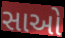
સાઓ